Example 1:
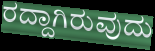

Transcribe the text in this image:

ರದ್ದಾಗಿರುವುದು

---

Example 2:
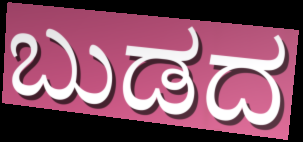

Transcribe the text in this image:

ಬುಡದ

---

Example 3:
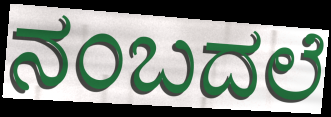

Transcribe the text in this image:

ನಂಬದಲೆ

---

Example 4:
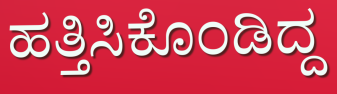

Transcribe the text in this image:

ಹತ್ತಿಸಿಕೊಂಡಿದ್ದ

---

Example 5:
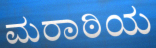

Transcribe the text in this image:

ಮರಾಠಿಯ